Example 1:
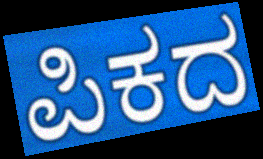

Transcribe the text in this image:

ಪಿಕದ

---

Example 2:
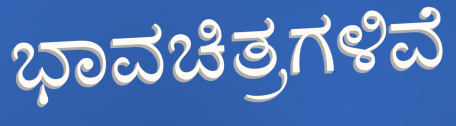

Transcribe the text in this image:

ಭಾವಚಿತ್ರಗಳಿವೆ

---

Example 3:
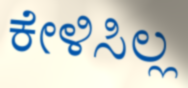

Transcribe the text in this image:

ಕೇಳಿಸಿಲ್ಲ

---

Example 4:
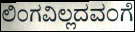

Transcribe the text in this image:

ಲಿಂಗವಿಲ್ಲದವಂಗೆ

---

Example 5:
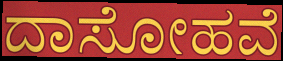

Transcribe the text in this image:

ದಾಸೋಹವೆ